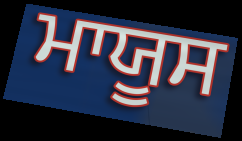
ਮਾਯੂਸ